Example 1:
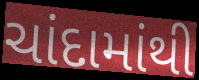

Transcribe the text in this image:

ચાંદામાંથી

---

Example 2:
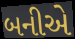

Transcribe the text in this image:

બનીએ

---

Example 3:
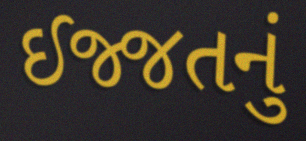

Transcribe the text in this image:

ઈજ્જતનું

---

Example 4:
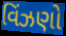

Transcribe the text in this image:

વિંઝણો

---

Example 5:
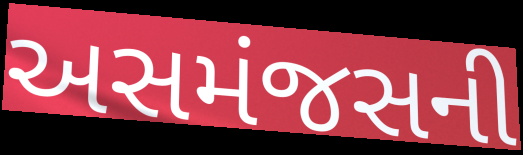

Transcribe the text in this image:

અસમંજસની